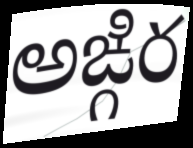
అఙ్గిర